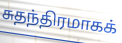
சுதந்திரமாகக்